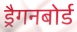
ड्रैगनबोर्ड